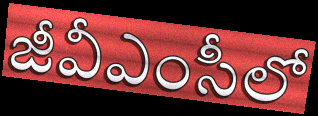
జీవీఎంసీలో